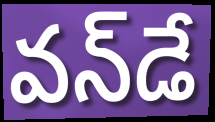
వన్‌డే